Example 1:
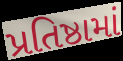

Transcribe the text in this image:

પ્રતિષ્ઠામાં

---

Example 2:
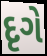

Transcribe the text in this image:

દૃગે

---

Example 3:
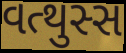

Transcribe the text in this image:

વત્થુસ્સ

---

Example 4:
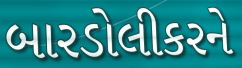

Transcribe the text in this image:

બારડોલીકરને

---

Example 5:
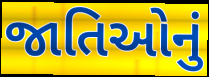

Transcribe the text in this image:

જાતિઓનું